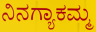
ನಿನಗ್ಯಾಕಮ್ಮ